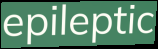
epileptic